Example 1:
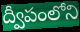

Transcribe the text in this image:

ద్వీపంలోని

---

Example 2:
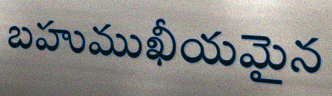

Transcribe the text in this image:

బహుముఖీయమైన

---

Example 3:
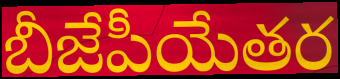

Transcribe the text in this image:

బీజేపీయేతర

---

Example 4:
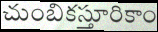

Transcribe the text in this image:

చుంబికస్తూరికాం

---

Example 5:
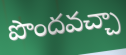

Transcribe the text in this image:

పొందవచ్చా